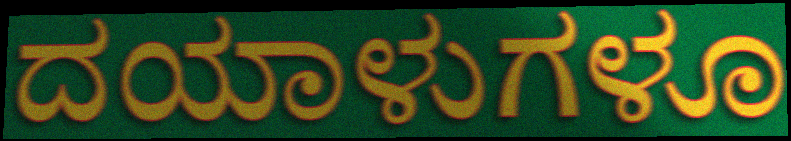
ದಯಾಳುಗಳೂ